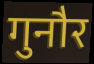
गुनौर